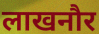
लाखनौर